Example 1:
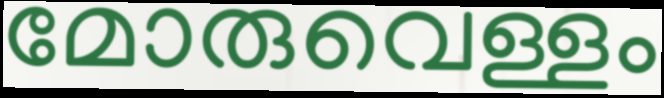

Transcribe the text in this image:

മോരുവെള്ളം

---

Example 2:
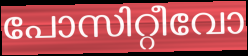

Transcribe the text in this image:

പോസിറ്റീവോ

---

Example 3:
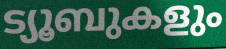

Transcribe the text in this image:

ട്യൂബുകളും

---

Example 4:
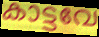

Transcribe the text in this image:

കാട്ടവേ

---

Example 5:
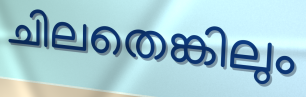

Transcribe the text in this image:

ചിലതെങ്കിലും